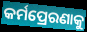
କର୍ମପ୍ରେରଣାକୁ